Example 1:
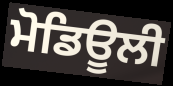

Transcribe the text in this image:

ਮੋਡਿਊਲੀ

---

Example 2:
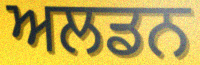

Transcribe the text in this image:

ਅਲਡਨ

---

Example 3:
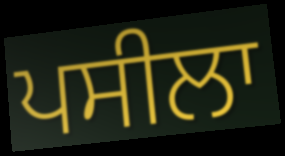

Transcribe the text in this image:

ਪਸੀਲਾ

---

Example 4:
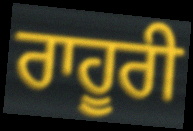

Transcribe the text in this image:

ਰਾਹੂਰੀ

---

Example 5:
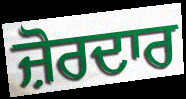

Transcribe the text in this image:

ਜ਼ੋਰਦਾਰ